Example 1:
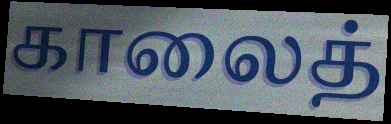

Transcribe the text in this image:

காலைத்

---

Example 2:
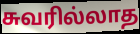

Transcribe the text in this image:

சுவரில்லாத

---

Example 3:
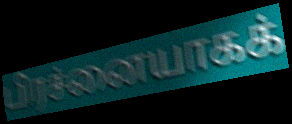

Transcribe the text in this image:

பிரச்னையாகக்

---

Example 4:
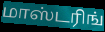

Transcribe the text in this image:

மாஸ்டரிங்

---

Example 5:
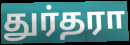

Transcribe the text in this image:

துர்தரா